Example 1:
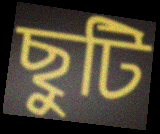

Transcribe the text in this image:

ছুটি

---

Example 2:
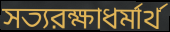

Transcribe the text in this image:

সত্যরক্ষাধর্মার্থ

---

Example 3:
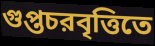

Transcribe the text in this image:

গুপ্তচরবৃত্তিতে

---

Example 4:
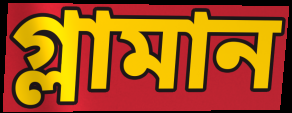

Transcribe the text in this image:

গ্লামান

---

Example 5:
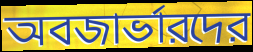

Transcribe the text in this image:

অবজার্ভারদের